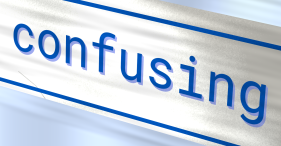
confusing